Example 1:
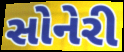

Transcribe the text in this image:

સોનેરી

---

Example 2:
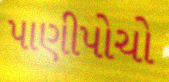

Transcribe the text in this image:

પાણીપોચો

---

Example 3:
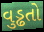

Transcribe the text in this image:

વુડ્ઢતો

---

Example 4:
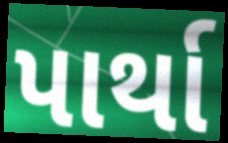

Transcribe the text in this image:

પાર્થા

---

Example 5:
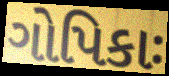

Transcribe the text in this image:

ગોપિકાઃ